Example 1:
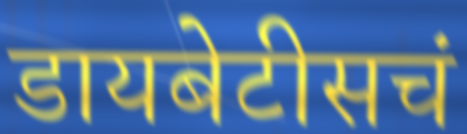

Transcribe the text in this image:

डायबेटीसचं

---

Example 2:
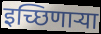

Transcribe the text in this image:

इच्छिणार्‍या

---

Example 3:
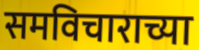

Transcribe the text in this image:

समविचाराच्या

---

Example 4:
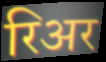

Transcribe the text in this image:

रिअर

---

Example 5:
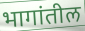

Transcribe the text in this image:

भागांतील